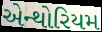
એન્થોરિયમ